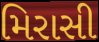
મિરાસી